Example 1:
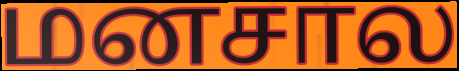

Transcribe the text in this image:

மனசால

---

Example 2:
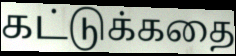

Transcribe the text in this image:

கட்டுக்கதை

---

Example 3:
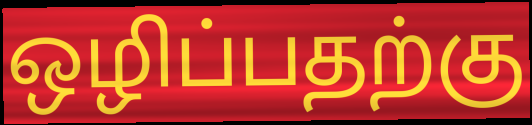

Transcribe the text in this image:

ஒழிப்பதற்கு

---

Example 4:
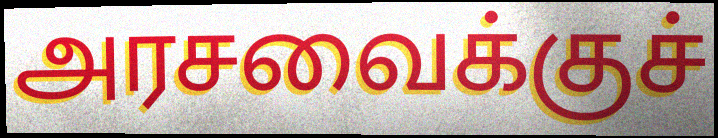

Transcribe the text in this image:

அரசவைக்குச்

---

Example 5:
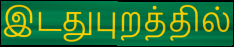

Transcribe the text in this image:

இடதுபுறத்தில்